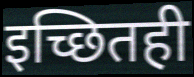
इच्छितही